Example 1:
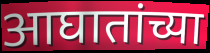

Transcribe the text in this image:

आघातांच्या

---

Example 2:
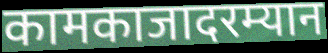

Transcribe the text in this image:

कामकाजादरम्यान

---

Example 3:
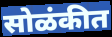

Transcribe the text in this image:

सोळंकीत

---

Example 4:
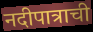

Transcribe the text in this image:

नदीपात्राची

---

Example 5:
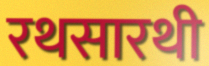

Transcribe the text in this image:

रथसारथी